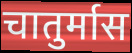
चातुर्मास